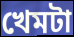
খেমটা